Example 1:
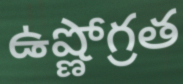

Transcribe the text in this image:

ఉష్ణోగ్రత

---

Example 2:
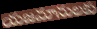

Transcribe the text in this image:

యజమానులకు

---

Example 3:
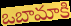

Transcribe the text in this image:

ఒబామాకి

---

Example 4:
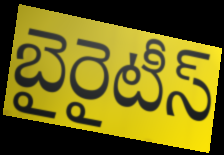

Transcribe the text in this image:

బైరైటీస్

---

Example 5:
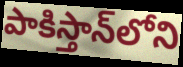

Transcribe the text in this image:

పాకిస్తాన్‌లోని